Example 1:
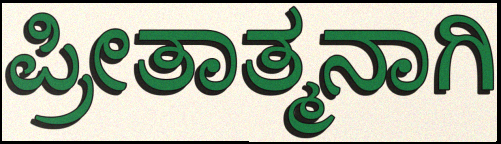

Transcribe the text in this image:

ಪ್ರೀತಾತ್ಮನಾಗಿ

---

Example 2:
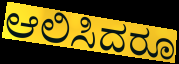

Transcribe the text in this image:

ಆಲಿಸಿದರೂ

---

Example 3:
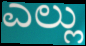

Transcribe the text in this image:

ಎಲ್ಲು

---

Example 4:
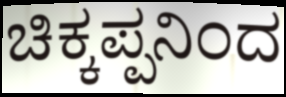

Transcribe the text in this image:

ಚಿಕ್ಕಪ್ಪನಿಂದ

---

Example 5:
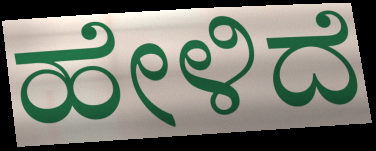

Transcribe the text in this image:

ಹೇಳಿದೆ